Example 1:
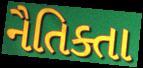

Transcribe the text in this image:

નૈતિક્તા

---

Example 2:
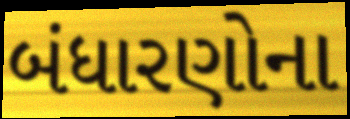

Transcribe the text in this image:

બંધારણોના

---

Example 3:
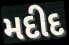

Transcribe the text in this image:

મદીદ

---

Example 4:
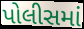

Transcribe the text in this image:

પોલીસમાં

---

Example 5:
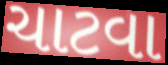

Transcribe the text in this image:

ચાટવા